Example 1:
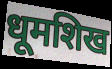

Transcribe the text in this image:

धूमशिख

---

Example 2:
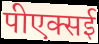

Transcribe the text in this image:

पीएक्सई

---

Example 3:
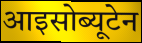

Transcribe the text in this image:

आइसोब्यूटेन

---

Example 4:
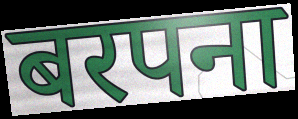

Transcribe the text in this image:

बरपना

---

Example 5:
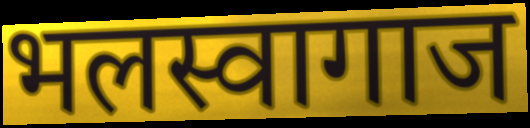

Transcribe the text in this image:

भलस्वागाज